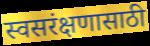
स्वसरंक्षणासाठी